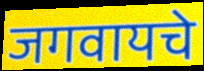
जगवायचे